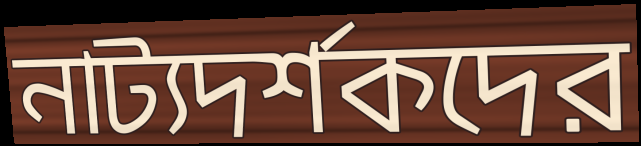
নাট্যদর্শকদের